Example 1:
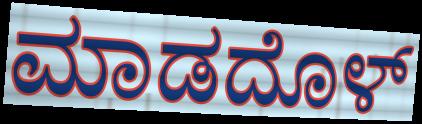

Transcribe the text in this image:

ಮಾಡದೊಳ್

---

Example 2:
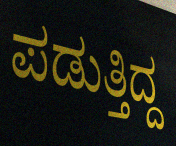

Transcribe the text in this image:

ಪಡುತ್ತಿದ್ದ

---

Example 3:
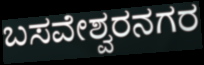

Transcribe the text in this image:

ಬಸವೇಶ್ವರನಗರ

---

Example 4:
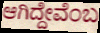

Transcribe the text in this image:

ಆಗಿದ್ದೇವೆಂಬ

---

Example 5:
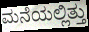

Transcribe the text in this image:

ಮನೆಯಲ್ಲಿತ್ತು